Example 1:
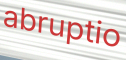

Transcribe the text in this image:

abruptio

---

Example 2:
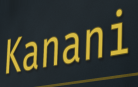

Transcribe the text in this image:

Kanani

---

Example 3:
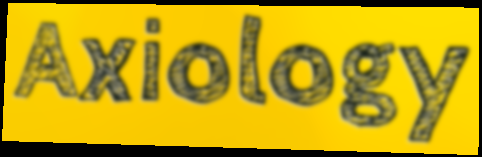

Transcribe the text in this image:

Axiology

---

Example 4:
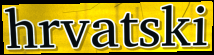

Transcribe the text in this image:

hrvatski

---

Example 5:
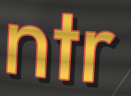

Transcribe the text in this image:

ntr